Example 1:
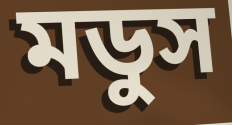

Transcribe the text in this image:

মডুস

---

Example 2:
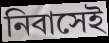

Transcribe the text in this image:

নিবাসেই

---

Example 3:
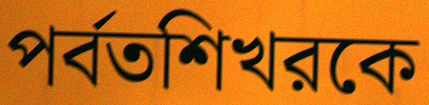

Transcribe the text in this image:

পর্বতশিখরকে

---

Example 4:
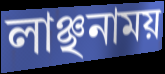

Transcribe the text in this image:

লাঞ্ছনাময়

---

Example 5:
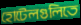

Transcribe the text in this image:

হোটেলগুলিতে